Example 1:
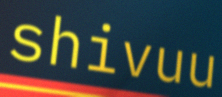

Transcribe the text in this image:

shivuu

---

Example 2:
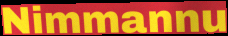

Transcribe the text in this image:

Nimmannu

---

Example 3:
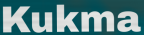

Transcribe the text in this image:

Kukma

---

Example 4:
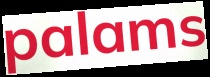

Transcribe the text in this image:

palams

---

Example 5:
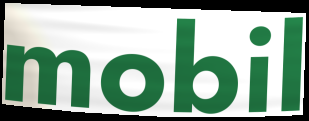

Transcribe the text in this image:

mobil